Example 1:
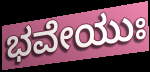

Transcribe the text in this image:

ಭವೇಯುಃ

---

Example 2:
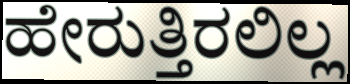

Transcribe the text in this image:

ಹೇರುತ್ತಿರಲಿಲ್ಲ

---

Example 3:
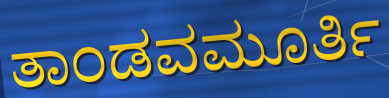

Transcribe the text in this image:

ತಾಂಡವಮೂರ್ತಿ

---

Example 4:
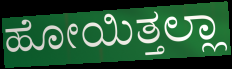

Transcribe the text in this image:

ಹೋಯಿತ್ತಲ್ಲಾ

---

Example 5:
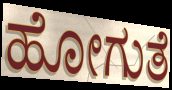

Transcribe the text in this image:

ಹೋಗುತೆ